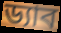
ড্যাব